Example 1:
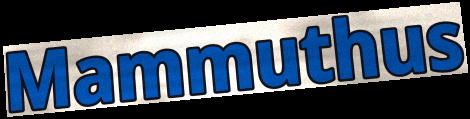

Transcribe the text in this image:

Mammuthus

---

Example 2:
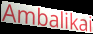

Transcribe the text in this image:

Ambalikai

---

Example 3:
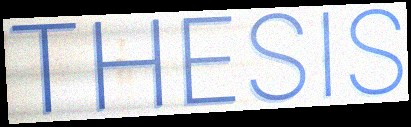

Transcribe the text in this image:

THESIS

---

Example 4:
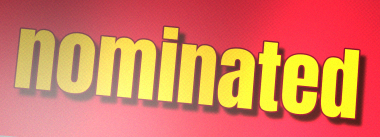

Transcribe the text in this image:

nominated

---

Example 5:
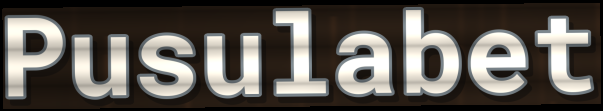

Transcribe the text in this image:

Pusulabet